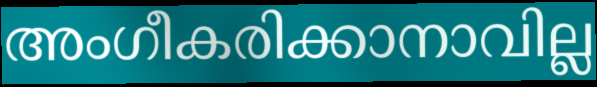
അംഗീകരിക്കാനാവില്ല